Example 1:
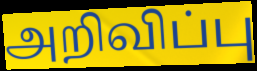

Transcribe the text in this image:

அறிவிப்பு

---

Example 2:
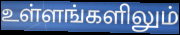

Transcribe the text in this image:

உள்ளங்களிலும்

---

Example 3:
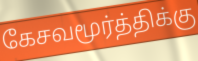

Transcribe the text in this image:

கேசவமூர்த்திக்கு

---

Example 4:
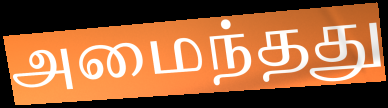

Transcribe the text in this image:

அமைந்தது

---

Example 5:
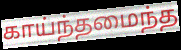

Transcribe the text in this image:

காய்ந்தமைந்த